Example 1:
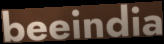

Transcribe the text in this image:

beeindia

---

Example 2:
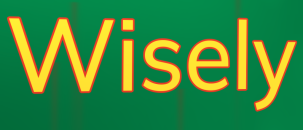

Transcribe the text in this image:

Wisely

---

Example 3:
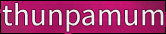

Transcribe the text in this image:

thunpamum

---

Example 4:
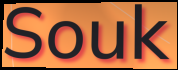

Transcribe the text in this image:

Souk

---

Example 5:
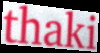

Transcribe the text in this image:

thaki